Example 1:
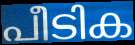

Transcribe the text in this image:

പീടിക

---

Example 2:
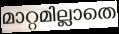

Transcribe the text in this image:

മാറ്റമില്ലാതെ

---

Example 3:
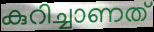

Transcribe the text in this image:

കുറിച്ചാണത്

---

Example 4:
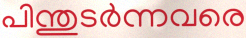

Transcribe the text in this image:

പിന്തുടർന്നവരെ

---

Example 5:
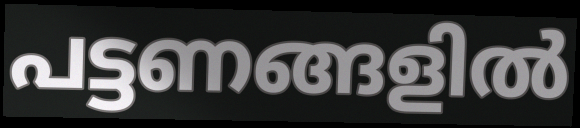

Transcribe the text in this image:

പട്ടണങ്ങളിൽ